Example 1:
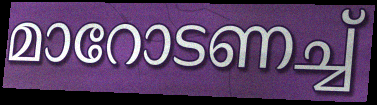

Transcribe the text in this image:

മാറോടണച്ച്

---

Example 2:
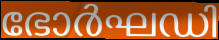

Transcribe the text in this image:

ഭോർഘഡി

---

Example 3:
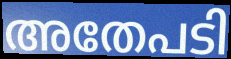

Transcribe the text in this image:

അതേപടി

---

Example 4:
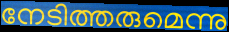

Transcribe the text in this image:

നേടിത്തരുമെന്നു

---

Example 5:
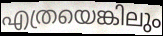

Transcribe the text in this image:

എത്രയെങ്കിലും